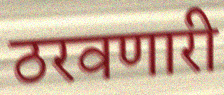
ठरवणारी